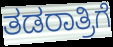
ತಡರಾತ್ರಿಗೆ